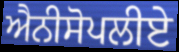
ਐਨੀਸੋਪਲੀਏ